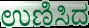
ಉಣಿಸಿದ